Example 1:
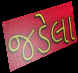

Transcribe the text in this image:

જડેલા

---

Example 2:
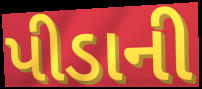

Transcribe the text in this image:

પીડાની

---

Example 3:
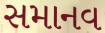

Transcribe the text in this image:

સમાનવ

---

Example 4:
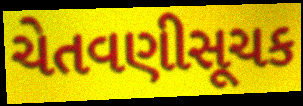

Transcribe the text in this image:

ચેતવણીસૂચક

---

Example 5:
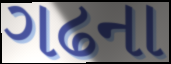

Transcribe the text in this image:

ગઢના